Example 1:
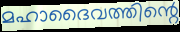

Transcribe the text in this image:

മഹാദൈവത്തിന്റെ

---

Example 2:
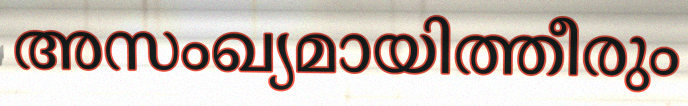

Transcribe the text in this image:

അസംഖ്യമായിത്തീരും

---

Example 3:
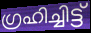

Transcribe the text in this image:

ഗ്രഹിച്ചിട്ട്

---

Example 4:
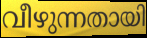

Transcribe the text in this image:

വീഴുന്നതായി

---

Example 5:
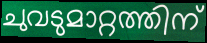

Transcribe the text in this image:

ചുവടുമാറ്റത്തിന്